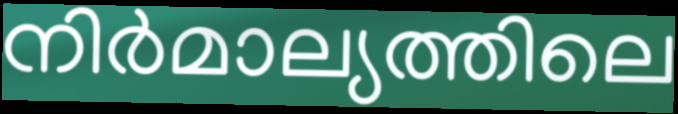
നിർമാല്യത്തിലെ